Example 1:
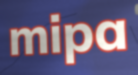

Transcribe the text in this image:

mipa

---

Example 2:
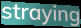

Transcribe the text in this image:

straying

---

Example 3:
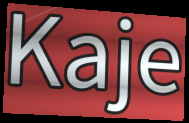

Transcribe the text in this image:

Kaje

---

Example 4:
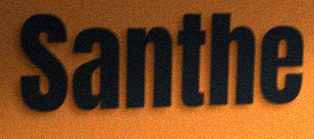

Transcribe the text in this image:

Santhe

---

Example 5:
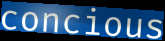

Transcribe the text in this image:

concious